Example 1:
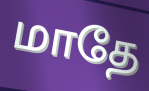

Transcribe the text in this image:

மாதே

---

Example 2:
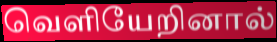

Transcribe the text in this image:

வெளியேறினால்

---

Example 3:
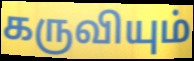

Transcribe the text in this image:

கருவியும்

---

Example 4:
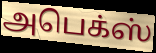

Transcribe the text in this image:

அபெக்ஸ்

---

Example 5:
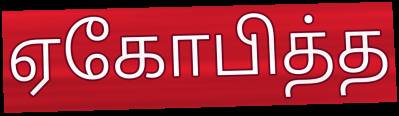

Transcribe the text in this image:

ஏகோபித்த